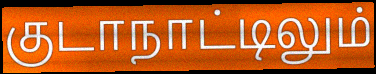
குடாநாட்டிலும்